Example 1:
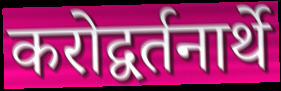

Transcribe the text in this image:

करोद्वर्तनार्थे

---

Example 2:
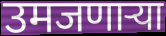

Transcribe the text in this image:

उमजणाऱ्या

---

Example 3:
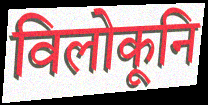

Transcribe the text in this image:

विलोकूनि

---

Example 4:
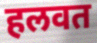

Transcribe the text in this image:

हलवत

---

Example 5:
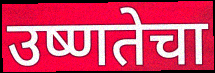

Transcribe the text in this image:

उष्णतेचा